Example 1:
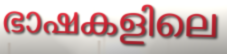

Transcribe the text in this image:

ഭാഷകളിലെ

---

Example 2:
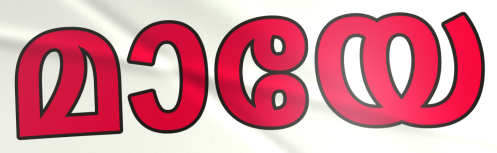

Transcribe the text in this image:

മായേ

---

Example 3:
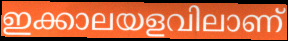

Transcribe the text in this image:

ഇക്കാലയളവിലാണ്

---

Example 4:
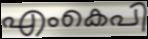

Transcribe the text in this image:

എംകെപി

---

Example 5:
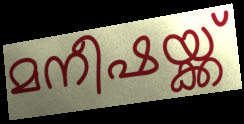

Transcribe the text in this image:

മനീഷയ്ക്ക്